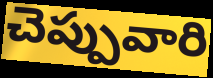
చెప్పువారి